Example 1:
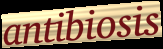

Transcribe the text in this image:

antibiosis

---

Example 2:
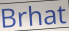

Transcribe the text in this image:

Brhat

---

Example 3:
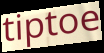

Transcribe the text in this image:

tiptoe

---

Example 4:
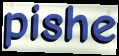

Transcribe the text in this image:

pishe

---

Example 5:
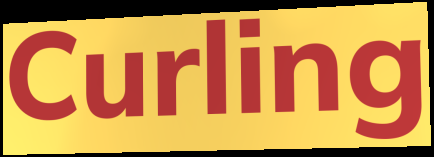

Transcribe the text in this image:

Curling